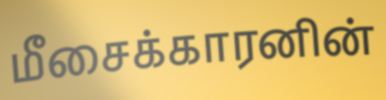
மீசைக்காரனின்